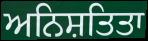
ਅਨਿਸ਼ਤਿਤਾ